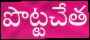
పొట్టచేత